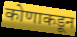
कोणाकडून